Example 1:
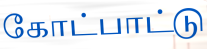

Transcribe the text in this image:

கோட்பாட்டு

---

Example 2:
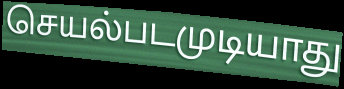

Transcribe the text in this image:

செயல்படமுடியாது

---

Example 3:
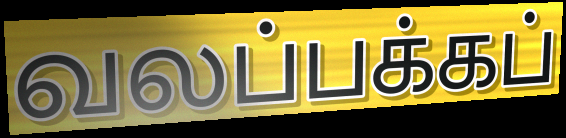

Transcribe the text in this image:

வலப்பக்கப்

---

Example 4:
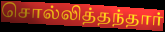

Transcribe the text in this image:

சொல்லித்தந்தார்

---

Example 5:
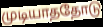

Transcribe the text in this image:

முடியாததோடு